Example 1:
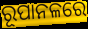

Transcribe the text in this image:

ରୂପାନଳରେ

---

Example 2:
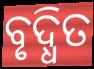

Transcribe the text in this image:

ବୃଦ୍ଧିତ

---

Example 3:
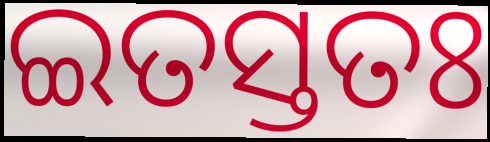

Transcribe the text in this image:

ଇତସ୍ତତଃ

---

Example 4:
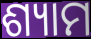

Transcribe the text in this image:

ଶ୍ୟାମ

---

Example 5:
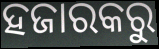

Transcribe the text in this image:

ହଜାରକରୁ